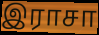
இராசா